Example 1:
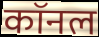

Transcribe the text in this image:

कॉनल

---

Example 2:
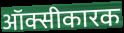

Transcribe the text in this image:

ऑक्सीकारक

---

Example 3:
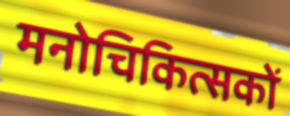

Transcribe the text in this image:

मनोचिकित्सकों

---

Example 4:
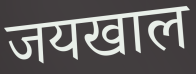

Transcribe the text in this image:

जयखाल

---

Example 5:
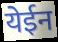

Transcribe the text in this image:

येईन